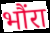
भौंरा